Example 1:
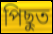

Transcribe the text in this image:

পিছুত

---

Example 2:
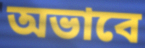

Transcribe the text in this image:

অভাবে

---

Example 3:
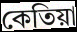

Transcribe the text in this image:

কেতিয়া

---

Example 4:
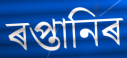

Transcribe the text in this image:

ৰপ্তানিৰ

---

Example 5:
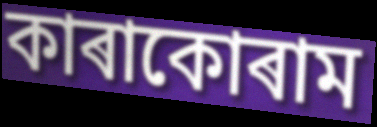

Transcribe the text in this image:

কাৰাকোৰাম